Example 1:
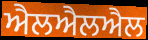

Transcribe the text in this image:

ਐਲਐਲਐਲ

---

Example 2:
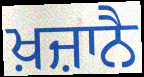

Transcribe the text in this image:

ਖ਼ਜ਼ਾਨੈ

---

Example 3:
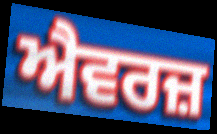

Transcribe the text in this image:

ਐਵਰਜ਼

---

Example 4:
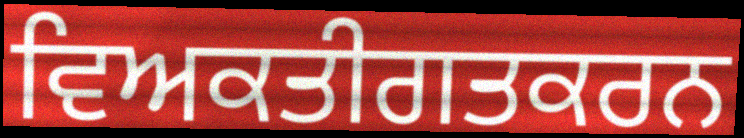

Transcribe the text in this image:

ਵਿਅਕਤੀਗਤਕਰਨ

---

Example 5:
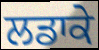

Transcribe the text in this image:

ਲਡਾਕੇ